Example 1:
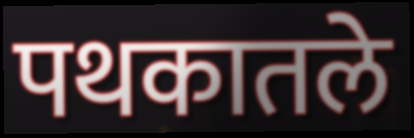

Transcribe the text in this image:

पथकातले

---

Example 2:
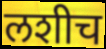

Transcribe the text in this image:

लशीच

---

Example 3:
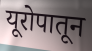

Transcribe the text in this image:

यूरोपातून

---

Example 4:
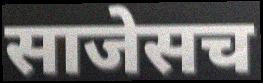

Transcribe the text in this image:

साजेसच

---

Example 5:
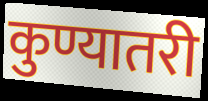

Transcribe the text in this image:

कुण्यातरी